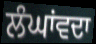
ਲੰਘਾਂਵਦਾ